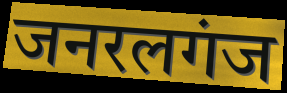
जनरलगंज